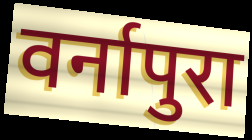
वर्नापुरा